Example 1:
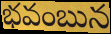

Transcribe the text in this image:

భవంబున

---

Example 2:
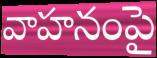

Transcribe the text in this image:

వాహనంపై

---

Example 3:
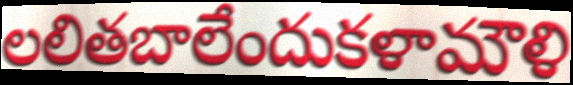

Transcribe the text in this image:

లలితబాలేందుకళామౌళి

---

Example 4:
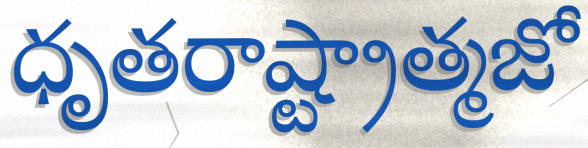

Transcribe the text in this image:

ధృతరాష్ట్రాత్మజో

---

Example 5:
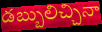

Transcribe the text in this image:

డబ్బులిచ్చినా